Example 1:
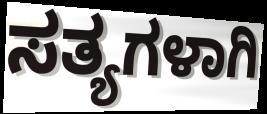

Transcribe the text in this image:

ಸತ್ಯಗಳಾಗಿ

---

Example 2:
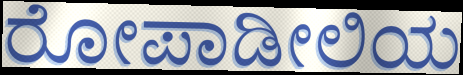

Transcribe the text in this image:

ರೋಪಾಡೀಲಿಯ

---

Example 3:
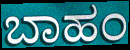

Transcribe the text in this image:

ಬಾಹಂ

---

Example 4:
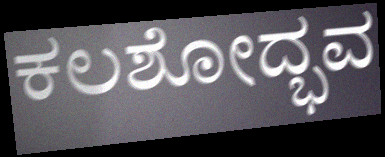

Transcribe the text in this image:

ಕಲಶೋದ್ಭವ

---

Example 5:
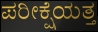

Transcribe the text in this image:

ಪರೀಕ್ಷೆಯತ್ತ